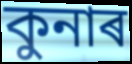
কুনাৰ